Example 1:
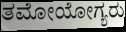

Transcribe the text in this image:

ತಮೋಯೋಗ್ಯರು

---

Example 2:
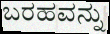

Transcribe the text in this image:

ಬರಹವನ್ನು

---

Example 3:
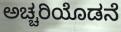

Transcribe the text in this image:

ಅಚ್ಚರಿಯೊಡನೆ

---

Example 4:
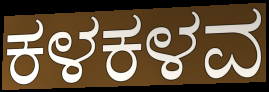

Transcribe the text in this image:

ಕಳಕಳವ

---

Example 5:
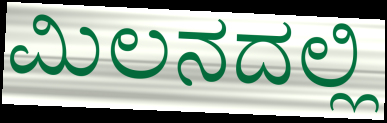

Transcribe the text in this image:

ಮಿಲನದಲ್ಲಿ